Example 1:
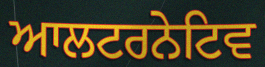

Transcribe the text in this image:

ਆਲਟਰਨੇਟਿਵ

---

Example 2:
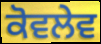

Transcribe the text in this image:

ਕੋਵਲੇਵ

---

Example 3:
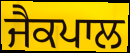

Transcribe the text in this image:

ਜੈਕਪਾਲ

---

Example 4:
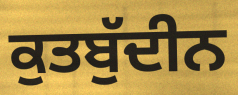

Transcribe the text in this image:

ਕੁਤਬੁੱਦੀਨ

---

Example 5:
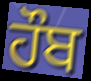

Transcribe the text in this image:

ਹੌਬ